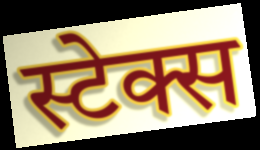
स्टेक्स